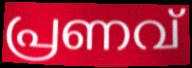
പ്രണവ്